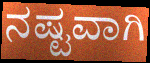
ನಷ್ಟವಾಗಿ